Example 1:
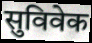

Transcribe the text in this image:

सुविवेक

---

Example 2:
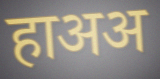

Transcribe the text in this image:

हाअअ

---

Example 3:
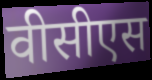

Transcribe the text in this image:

वीसीएस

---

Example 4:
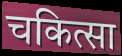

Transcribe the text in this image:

चकित्सा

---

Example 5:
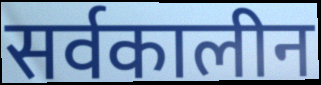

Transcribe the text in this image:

सर्वकालीन